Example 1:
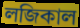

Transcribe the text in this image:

লজিকাল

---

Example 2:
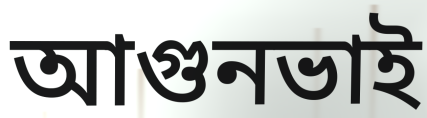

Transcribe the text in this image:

আগুনভাই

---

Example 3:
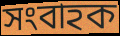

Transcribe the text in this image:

সংবাহক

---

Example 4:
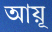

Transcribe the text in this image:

আয়ূ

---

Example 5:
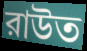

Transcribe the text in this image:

রাউত